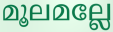
മൂലമല്ലേ